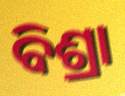
ବିଶ୍ରା